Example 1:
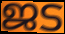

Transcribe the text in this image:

ജട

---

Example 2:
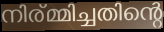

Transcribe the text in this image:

നിര്മ്മിച്ചതിന്റെ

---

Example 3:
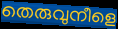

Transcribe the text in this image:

തെരുവുനീളെ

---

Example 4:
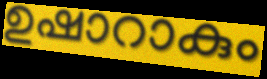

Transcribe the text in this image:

ഉഷാറാകും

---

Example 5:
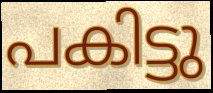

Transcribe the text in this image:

പകിട്ടു